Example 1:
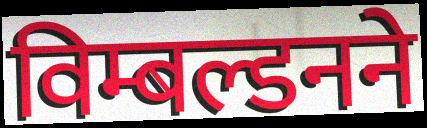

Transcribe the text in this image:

विम्बल्डनने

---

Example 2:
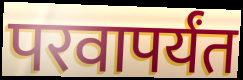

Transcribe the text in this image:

परवापर्यंत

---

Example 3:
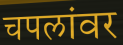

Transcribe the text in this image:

चपलांवर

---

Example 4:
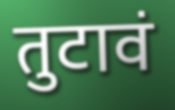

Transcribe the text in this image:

तुटावं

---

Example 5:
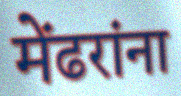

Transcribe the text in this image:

मेंढरांना